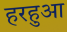
हरहुआ